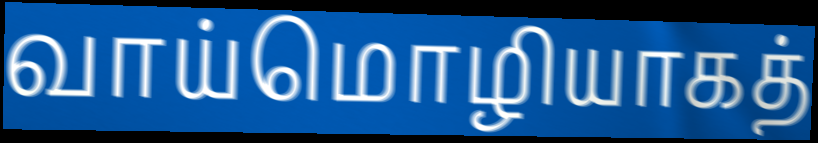
வாய்மொழியாகத்